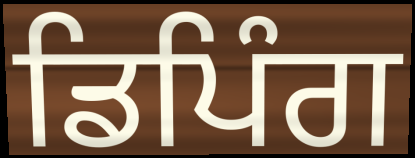
ਡਿਪਿੰਗ